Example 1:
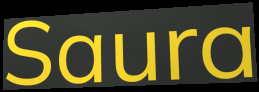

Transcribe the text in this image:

Saura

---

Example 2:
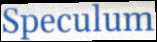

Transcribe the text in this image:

Speculum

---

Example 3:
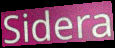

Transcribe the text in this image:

Sidera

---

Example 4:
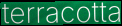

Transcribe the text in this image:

terracotta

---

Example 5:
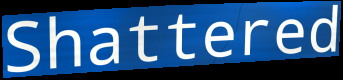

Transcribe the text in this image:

Shattered